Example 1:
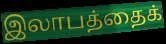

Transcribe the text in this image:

இலாபத்தைக்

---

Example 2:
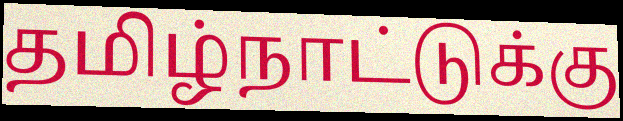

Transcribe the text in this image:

தமிழ்நாட்டுக்கு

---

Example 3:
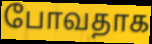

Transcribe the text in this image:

போவதாக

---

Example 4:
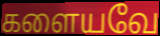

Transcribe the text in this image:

களையவே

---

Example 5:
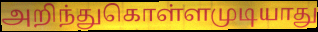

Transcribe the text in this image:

அறிந்துகொள்ளமுடியாது